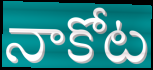
నాకోట